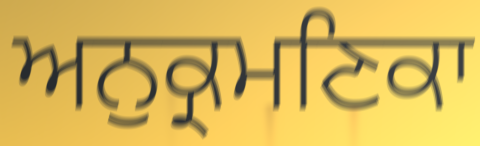
ਅਨੁਕ੍ਰਮਣਿਕਾ